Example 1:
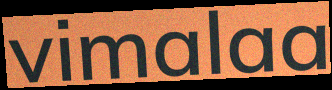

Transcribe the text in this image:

vimalaa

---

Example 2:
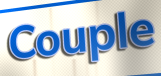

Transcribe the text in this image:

Couple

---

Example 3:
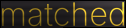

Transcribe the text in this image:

matched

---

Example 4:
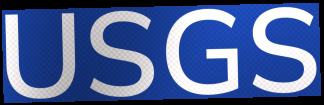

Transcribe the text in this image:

USGS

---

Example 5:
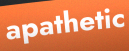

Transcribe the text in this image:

apathetic